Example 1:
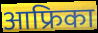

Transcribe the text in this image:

आफ्रिका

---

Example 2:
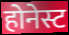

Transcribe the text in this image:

होनेस्ट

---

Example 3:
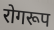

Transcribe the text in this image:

रोगरूप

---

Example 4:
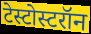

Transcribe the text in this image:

टेस्टोस्टरॉन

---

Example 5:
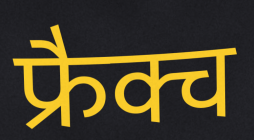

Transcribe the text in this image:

फ्रैक्च